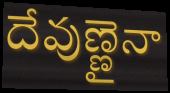
దేవుణ్ణైనా